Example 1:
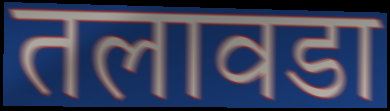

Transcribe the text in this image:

तलावडा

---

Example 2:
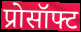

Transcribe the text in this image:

प्रोसॉफ्ट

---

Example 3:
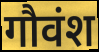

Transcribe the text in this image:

गौवंश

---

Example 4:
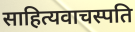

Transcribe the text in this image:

साहित्यवाचस्पति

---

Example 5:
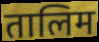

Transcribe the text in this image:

तालिम